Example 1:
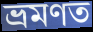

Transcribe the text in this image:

ভ্ৰমণত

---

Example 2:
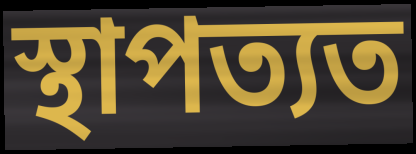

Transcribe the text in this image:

স্থাপত্যত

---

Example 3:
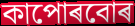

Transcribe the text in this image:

কাপোৰবোৰ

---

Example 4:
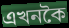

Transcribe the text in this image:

এখনকৈ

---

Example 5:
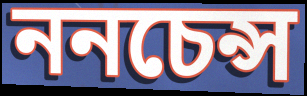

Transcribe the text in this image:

ননচেন্স